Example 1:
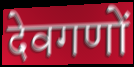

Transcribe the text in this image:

देवगणों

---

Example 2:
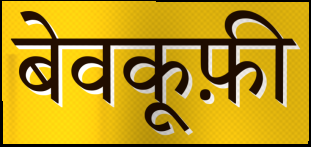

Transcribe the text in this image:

बेवकूफ़ी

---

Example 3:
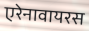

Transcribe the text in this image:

एरेनावायरस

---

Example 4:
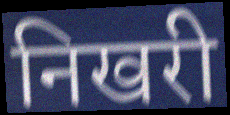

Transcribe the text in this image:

निखरी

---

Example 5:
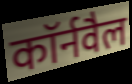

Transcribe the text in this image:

कॉर्नवैल